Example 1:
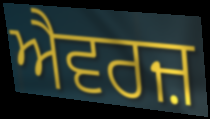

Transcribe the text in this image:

ਐਵਰਜ਼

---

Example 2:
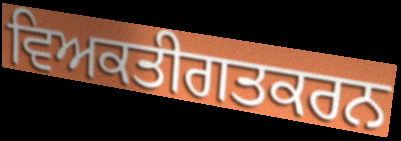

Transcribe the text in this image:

ਵਿਅਕਤੀਗਤਕਰਨ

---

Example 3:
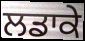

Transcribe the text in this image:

ਲਡਾਕੇ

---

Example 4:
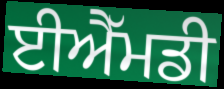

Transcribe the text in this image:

ਈਐੱਮਡੀ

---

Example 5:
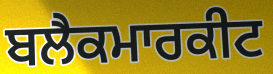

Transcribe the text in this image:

ਬਲੈਕਮਾਰਕੀਟ